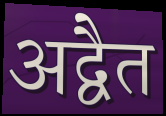
अद्वैत